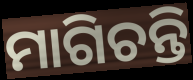
ମାଗିଚନ୍ତି